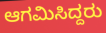
ಆಗಮಿಸಿದ್ದರು